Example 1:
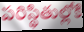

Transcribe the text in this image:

పరిస్థితుల్లోకి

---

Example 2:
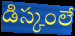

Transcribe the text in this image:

డిస్కంలే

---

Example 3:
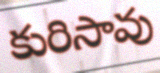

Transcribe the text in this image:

కురిసావు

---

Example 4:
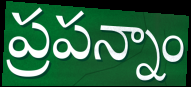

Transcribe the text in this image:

ప్రపన్నాం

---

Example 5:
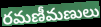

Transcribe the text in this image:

రమణీమణులు